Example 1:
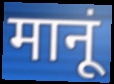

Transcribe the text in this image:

मानूं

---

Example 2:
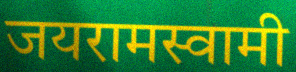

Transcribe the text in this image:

जयरामस्वामी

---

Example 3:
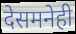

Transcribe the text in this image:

देसमनेही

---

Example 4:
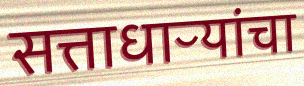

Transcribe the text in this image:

सत्ताधाऱ्यांचा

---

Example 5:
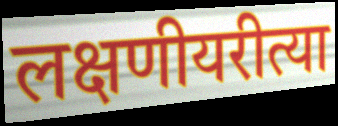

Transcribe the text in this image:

लक्षणीयरीत्या